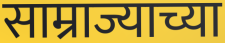
साम्राज्याच्या